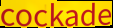
cockade